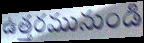
ఉత్తరమునుండి